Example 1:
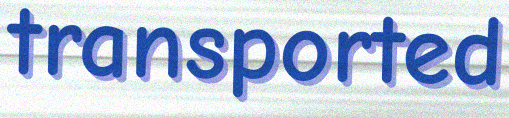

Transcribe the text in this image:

transported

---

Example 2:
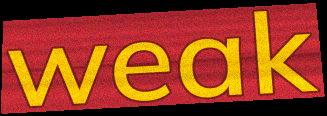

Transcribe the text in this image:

weak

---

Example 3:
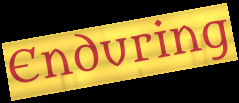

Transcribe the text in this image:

Enduring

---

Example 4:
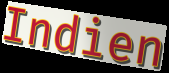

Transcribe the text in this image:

Indien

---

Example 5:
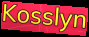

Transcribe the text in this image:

Kosslyn